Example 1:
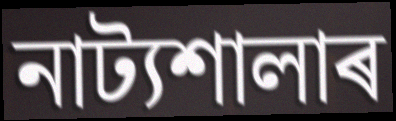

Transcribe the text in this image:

নাট্যশালাৰ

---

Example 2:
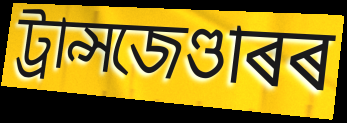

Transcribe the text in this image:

ট্ৰান্সজেণ্ডাৰৰ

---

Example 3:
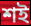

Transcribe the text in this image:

শই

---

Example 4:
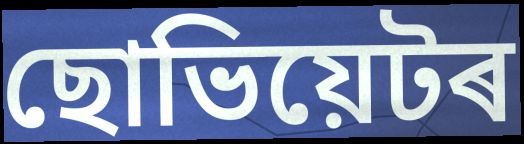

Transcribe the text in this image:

ছোভিয়েটৰ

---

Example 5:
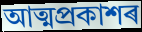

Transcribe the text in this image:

আত্মপ্ৰকাশৰ